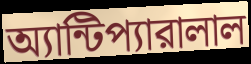
অ্যান্টিপ্যারালাল